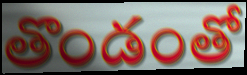
తొండంతో